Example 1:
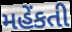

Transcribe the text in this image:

મહેંકતી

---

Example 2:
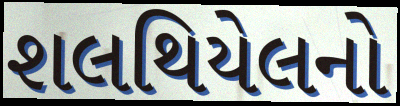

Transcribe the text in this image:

શલથિયેલનો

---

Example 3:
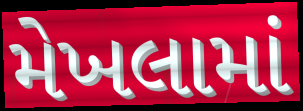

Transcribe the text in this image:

મેખલામાં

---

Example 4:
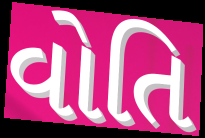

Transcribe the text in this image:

વોતિ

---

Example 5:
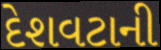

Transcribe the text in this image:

દેશવટાની